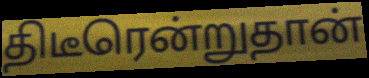
திடீரென்றுதான்